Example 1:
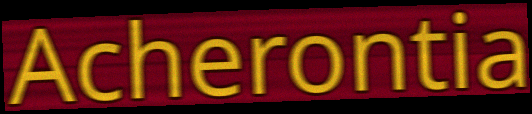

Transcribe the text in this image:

Acherontia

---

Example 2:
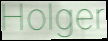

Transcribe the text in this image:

Holger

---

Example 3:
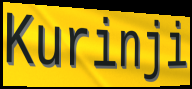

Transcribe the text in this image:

Kurinji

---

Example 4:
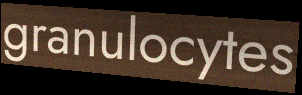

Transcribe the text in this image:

granulocytes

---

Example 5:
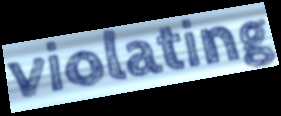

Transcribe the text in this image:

violating